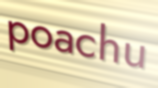
poachu